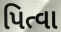
પિત્વા